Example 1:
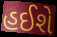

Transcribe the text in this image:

હઈશે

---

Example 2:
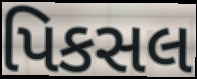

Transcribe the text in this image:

પિકસલ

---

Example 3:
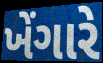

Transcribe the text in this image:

ખેંગારે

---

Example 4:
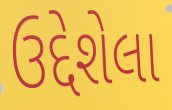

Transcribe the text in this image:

ઉદ્દેશેલા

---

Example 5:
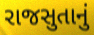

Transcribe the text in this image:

રાજસુતાનું